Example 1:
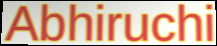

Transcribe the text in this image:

Abhiruchi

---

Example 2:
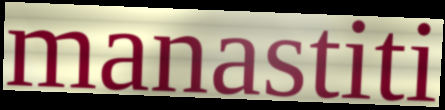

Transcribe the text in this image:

manastiti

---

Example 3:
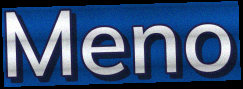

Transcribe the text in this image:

Meno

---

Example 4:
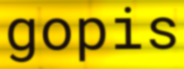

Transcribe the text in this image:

gopis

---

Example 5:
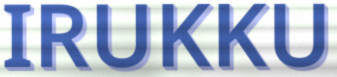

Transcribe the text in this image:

IRUKKU